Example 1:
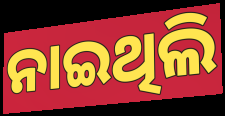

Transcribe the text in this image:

ନାଇଥିଲି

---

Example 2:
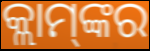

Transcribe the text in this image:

କ୍ଲାମ୍‌ଙ୍କର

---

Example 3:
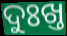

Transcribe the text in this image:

ଦୁଃଖ୍ତ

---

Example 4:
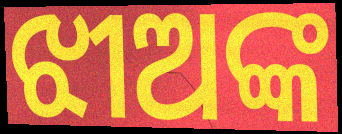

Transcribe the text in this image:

ଝୀଅଙ୍କ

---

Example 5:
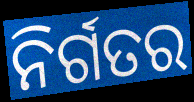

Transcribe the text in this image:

ନିର୍ଗତର